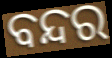
ବନ୍ଦର